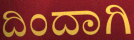
ದಿಂದಾಗಿ